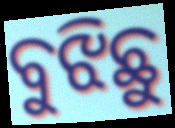
ବୁଝିଛୁ